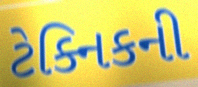
ટેક્નિકની